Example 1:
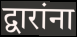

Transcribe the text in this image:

द्वारांना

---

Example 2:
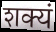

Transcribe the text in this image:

शक्यं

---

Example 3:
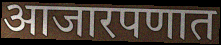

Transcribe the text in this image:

आजारपणात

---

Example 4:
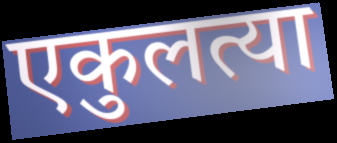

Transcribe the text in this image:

एकुलत्या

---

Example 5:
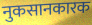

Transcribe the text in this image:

नुकसानकारक